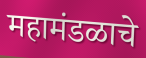
महामंडळाचे